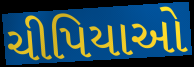
ચીપિયાઓ